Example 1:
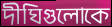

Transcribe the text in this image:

দীঘিগুলোকে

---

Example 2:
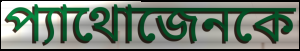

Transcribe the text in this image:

প্যাথোজেনকে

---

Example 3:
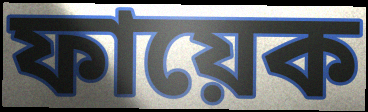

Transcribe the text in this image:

ফায়েক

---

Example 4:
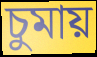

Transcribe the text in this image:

চুমায়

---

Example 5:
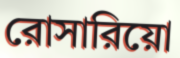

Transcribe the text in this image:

রোসারিয়ো